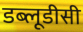
डब्लूडीसी